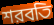
শরবতি